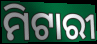
ମିଟାରୀ